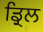
ਡ੍ਰਿਲ